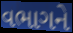
વભાગને